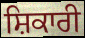
ਸ਼ਿਕਾਰੀ